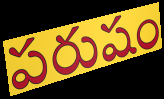
పరుషం